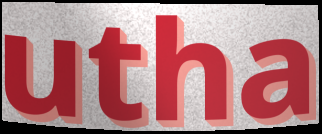
utha